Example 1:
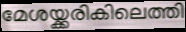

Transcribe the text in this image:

മേശയ്ക്കരികിലെത്തി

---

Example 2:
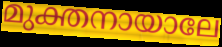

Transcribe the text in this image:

മുക്തനായാലേ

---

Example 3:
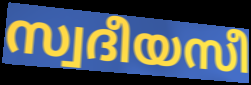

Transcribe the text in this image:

സ്വദീയസീ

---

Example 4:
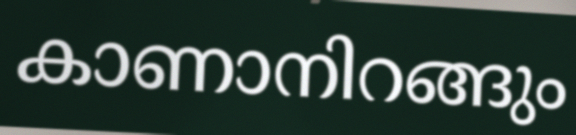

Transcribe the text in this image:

കാണാനിറങ്ങും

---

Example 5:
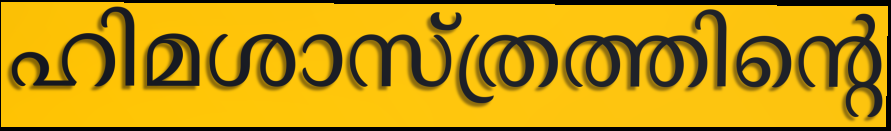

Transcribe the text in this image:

ഹിമശാസ്ത്രത്തിന്റെ